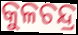
କୁଳଚନ୍ଦ୍ର